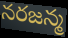
నరజన్మ